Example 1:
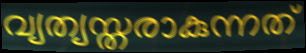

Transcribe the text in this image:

വ്യത്യസ്തരാകുന്നത്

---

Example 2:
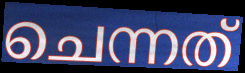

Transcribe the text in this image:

ചെന്നത്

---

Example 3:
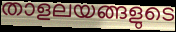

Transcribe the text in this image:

താളലയങ്ങളുടെ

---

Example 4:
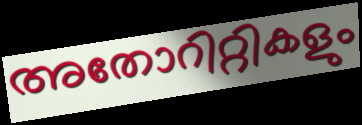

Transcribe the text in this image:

അതോറിറ്റികളും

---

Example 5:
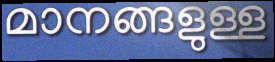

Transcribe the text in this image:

മാനങ്ങളുള്ള